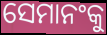
ସେମାନଂକୁ